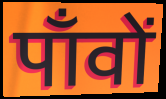
पाँवों